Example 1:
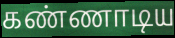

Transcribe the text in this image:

கண்ணாடிய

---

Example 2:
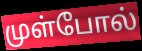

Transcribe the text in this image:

முள்போல்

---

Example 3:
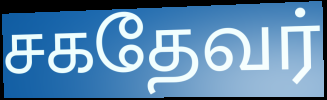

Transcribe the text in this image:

சகதேவர்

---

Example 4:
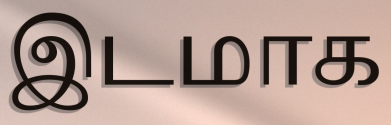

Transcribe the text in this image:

இடமாக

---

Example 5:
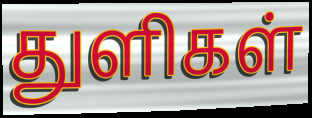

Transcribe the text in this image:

துளிகள்